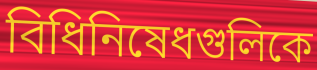
বিধিনিষেধগুলিকে